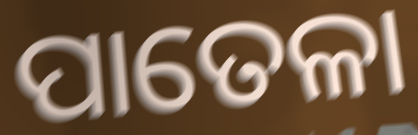
ପାତେଳା